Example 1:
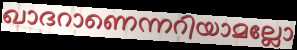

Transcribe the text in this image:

ഖാദറാണെന്നറിയാമല്ലോ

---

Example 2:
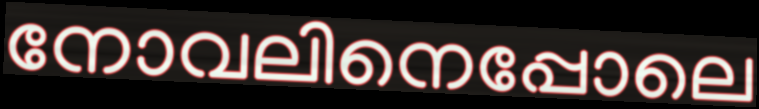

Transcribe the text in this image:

നോവലിനെപ്പോലെ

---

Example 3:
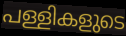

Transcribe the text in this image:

പള്ളികളുടെ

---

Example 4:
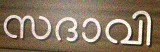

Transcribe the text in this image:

സദാവി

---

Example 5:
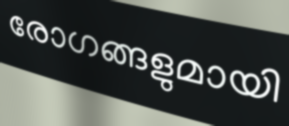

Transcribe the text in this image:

രോഗങ്ങളുമായി